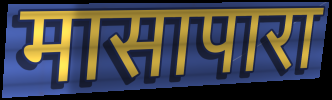
मासापारा